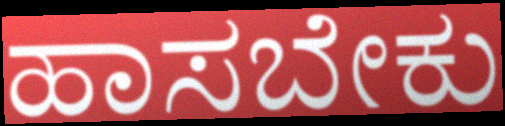
ಹಾಸಬೇಕು